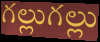
గల్లుగల్లు